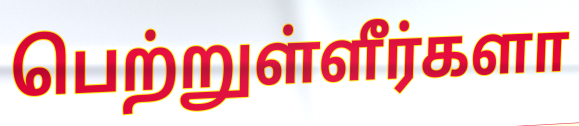
பெற்றுள்ளீர்களா